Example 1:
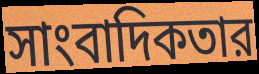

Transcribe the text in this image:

সাংবাদিকতার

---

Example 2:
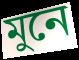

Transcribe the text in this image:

মুনে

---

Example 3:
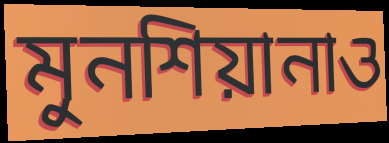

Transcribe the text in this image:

মুনশিয়ানাও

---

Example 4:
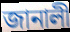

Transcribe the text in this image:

জানালী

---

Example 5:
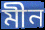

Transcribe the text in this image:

মীন